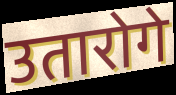
उतारोगे